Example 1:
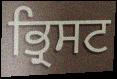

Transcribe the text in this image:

ਭ੍ਰਿਸਟ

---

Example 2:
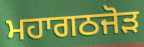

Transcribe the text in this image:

ਮਹਾਗਠਜੋੜ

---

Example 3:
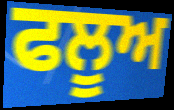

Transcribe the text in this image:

ਫਲੂਅ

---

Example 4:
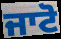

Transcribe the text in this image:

ਜਾਟੋ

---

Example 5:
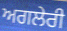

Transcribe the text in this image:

ਅਗਲੇਰੀ